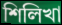
শিলিখা